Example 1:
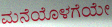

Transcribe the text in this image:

ಮನೆಯೊಳಗೆಯೇ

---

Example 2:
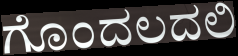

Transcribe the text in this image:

ಗೊಂದಲದಲಿ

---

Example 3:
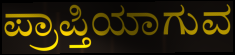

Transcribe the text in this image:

ಪ್ರಾಪ್ತಿಯಾಗುವ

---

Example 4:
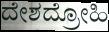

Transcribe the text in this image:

ದೇಶದ್ರೋಹಿ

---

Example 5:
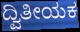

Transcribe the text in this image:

ದ್ವಿತೀಯಕ